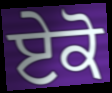
ਏਕੋ